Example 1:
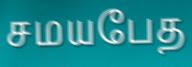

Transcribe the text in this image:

சமயபேத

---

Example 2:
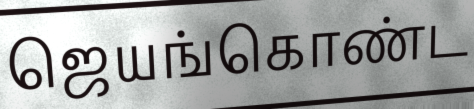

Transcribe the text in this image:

ஜெயங்கொண்ட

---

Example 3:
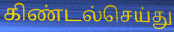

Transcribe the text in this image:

கிண்டல்செய்து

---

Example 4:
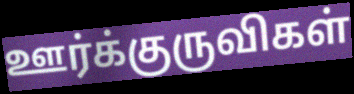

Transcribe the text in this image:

ஊர்க்குருவிகள்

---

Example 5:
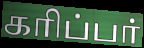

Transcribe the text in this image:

கரிப்பர்